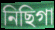
নিছিগা